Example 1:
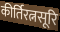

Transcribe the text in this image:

कीर्तिरत्नसूरि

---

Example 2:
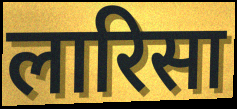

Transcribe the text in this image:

लारिसा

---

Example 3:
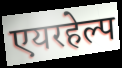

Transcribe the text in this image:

एयरहेल्प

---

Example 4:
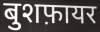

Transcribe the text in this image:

बुशफ़ायर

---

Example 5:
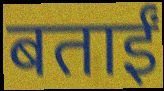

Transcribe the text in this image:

बताईं